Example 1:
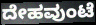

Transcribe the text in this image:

ದೇಹವುಂಟೆ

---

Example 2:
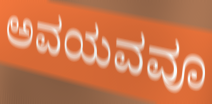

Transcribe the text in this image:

ಅವಯವವೂ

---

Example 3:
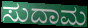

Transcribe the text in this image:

ಸುದಾಮ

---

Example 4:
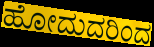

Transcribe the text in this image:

ಹೋದುದರಿಂದ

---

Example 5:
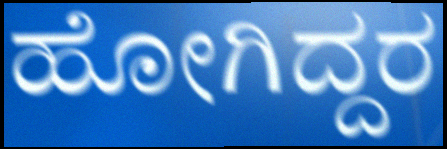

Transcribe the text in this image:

ಹೋಗಿದ್ದರ